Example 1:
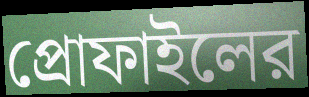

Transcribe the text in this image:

প্রোফাইলের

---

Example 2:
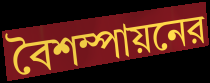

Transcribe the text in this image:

বৈশম্পায়নের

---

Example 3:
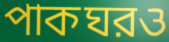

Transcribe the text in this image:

পাকঘরও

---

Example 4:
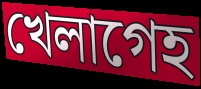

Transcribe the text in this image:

খেলাগেহ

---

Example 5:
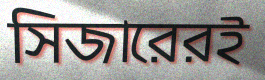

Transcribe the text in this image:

সিজারেরই